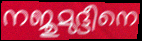
നജുമുദ്ദീനെ